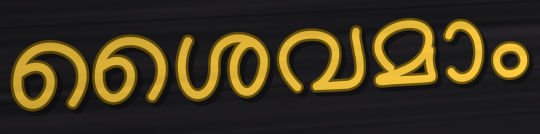
ശൈവമാം